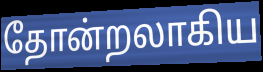
தோன்றலாகிய